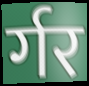
र्गर